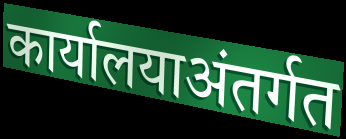
कार्यालयाअंतर्गत